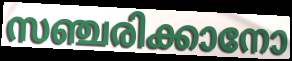
സഞ്ചരിക്കാനോ